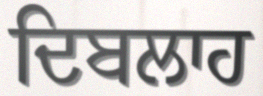
ਦਿਬਲਾਹ